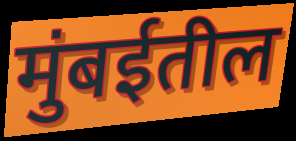
मुंबईतील